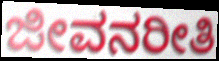
ಜೀವನರೀತಿ